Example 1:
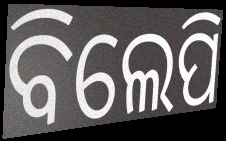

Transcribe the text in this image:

ବିଲେପି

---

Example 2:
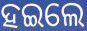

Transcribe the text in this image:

ହଇଲେ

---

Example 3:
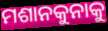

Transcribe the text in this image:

ମଶାନକୁନାକୁ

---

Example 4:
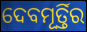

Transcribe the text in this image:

ଦେବମୂର୍ତ୍ତିର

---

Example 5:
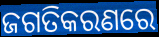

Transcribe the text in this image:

ଜଗତିକରଣରେ